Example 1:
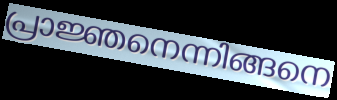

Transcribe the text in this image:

പ്രാജ്ഞനെന്നിങ്ങനെ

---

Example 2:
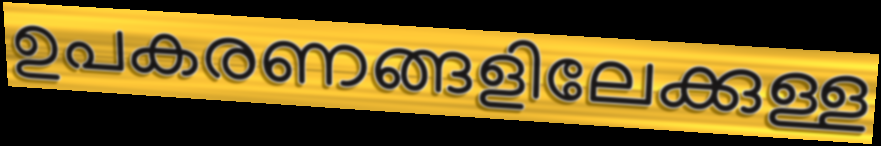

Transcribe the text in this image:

ഉപകരണങ്ങളിലേക്കുള്ള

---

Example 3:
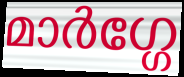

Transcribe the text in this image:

മാർഗ്ഗേ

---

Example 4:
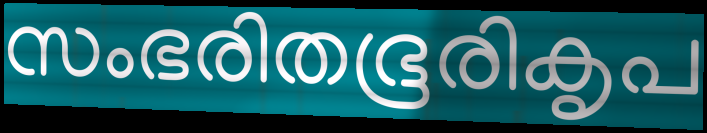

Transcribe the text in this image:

സംഭരിതഭൂരികൃപ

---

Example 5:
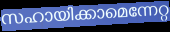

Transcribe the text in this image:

സഹായിക്കാമെന്നേറ്റ